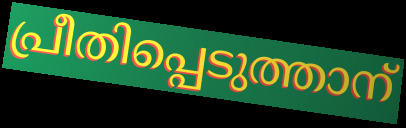
പ്രീതിപ്പെടുത്താന്